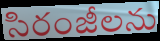
సిరంజీలను